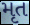
મૃત